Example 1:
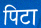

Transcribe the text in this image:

पिटा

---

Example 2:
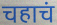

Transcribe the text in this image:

चहाचं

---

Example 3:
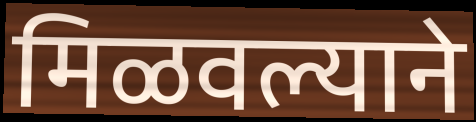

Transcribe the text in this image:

मिळवल्याने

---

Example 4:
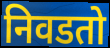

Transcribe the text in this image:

निवडतो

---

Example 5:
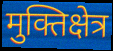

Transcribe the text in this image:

मुक्तिक्षेत्र